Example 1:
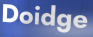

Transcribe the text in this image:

Doidge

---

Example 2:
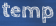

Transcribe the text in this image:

temp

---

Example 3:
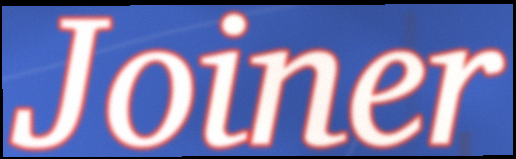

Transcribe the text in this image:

Joiner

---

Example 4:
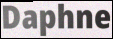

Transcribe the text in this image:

Daphne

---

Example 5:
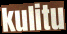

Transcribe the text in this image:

kulitu